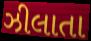
ઝીલાતા